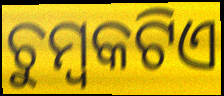
ଚୁମ୍ବକଟିଏ